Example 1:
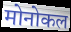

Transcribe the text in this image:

मोनोकल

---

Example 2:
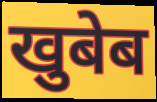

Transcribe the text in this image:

खुबेब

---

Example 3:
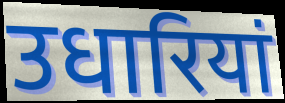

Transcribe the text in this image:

उधारियां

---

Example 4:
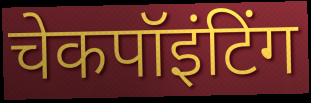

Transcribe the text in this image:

चेकपॉइंटिंग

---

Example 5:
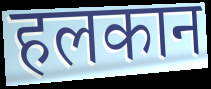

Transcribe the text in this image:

हलकान